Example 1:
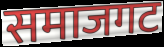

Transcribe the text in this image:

समाजगट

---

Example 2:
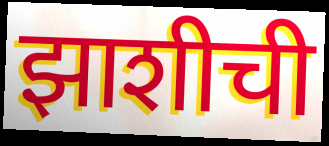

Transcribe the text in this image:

झाशीची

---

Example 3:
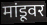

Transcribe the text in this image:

मांडूवर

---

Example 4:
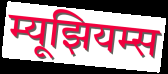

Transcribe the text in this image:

म्यूझियम्स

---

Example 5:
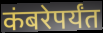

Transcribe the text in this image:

कंबरेपर्यंत